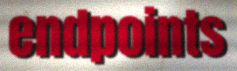
endpoints